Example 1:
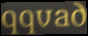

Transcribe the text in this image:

qquad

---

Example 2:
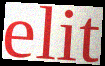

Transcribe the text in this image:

elit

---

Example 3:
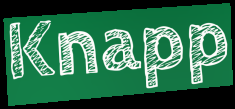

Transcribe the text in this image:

Knapp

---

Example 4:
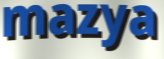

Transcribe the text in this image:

mazya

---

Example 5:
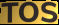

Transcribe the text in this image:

TOS